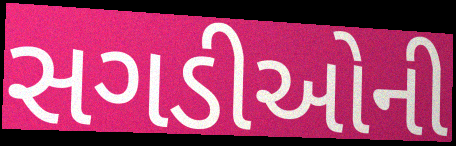
સગડીઓની